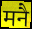
मनै